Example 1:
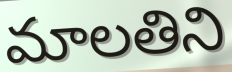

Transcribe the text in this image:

మాలతిని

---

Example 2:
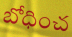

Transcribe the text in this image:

బోధించ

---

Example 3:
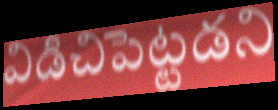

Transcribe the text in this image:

విడిచిపెట్టడని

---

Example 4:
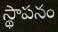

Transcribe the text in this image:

స్థాపనం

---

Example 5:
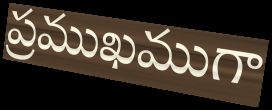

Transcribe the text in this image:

ప్రముఖముగా